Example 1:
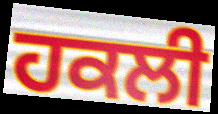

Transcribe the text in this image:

ਹਕਲੀ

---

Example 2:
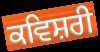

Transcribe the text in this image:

ਕਵਿਸ਼ਰੀ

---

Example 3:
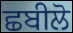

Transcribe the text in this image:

ਛਬੀਲੋ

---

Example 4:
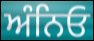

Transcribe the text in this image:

ਅੰਨਿਓ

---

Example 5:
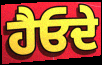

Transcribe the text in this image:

ਹੈਓਦੇ